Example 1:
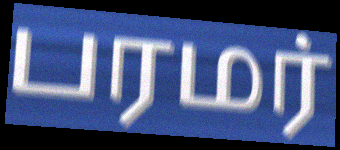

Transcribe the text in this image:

பரமர்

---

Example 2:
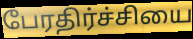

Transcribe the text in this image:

பேரதிர்ச்சியை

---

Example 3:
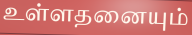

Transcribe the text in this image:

உள்ளதனையும்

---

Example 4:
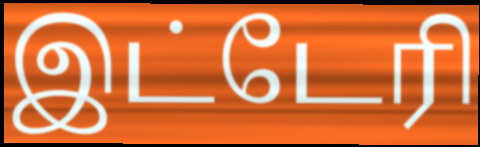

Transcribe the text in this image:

இட்டேரி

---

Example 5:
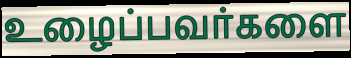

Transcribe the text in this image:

உழைப்பவர்களை